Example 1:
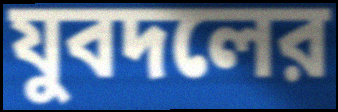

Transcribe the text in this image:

যুবদলের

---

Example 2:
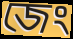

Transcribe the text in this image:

জেং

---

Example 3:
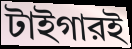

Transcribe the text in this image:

টাইগারই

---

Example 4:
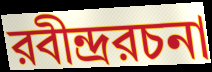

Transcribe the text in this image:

রবীন্দ্ররচনা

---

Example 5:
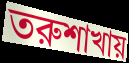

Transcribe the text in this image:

তরুশাখায়